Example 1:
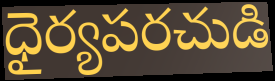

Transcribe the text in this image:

ధైర్యపరచుడి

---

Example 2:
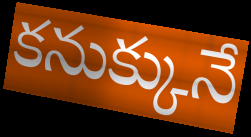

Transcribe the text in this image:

కనుక్కునే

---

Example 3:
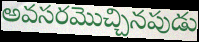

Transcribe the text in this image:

అవసరమొచ్చినపుడు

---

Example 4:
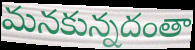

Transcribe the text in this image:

మనకున్నదంతా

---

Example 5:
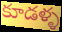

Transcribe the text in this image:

కూడళ్ళ